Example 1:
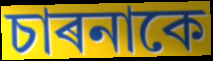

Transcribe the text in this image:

চাৰনাকে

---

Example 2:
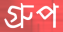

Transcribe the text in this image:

গ্ৰুপ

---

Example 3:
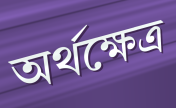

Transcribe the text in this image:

অৰ্থক্ষেত্ৰ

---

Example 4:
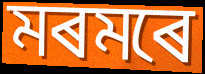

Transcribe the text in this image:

মৰমৰে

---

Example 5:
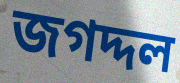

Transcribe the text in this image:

জগদ্দল